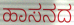
ಹಾಸನದ